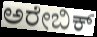
ಅರೇಬಿಕ್